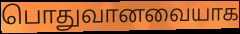
பொதுவானவையாக